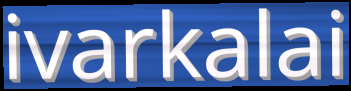
ivarkalai